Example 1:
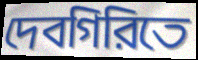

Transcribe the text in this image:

দেবগিরিতে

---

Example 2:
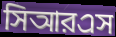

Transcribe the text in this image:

সিআরএস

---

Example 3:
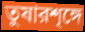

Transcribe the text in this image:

তুষারশৃঙ্গে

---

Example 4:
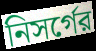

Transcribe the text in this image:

নিসর্গের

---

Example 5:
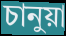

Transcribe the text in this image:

চানুয়া